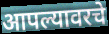
आपल्यावरचे